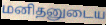
மனிதனுடைய